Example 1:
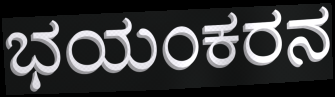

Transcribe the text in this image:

ಭಯಂಕರನ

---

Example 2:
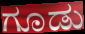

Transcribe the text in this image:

ಗೂಡು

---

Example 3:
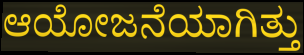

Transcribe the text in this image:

ಆಯೋಜನೆಯಾಗಿತ್ತು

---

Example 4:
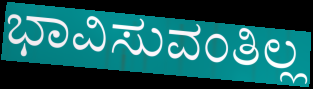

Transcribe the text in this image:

ಭಾವಿಸುವಂತಿಲ್ಲ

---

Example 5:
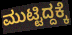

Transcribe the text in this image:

ಮುಟ್ಟಿದ್ದಕ್ಕೆ